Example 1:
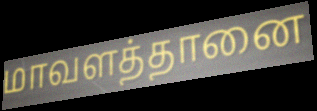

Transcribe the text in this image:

மாவளத்தானை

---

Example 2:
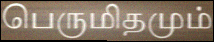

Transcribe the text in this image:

பெருமிதமும்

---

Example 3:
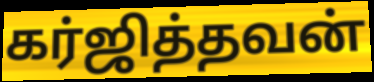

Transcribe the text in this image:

கர்ஜித்தவன்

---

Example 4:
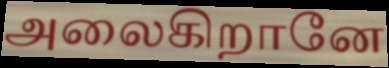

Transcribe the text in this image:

அலைகிறானே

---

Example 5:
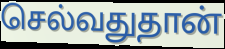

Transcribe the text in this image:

செல்வதுதான்